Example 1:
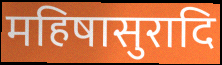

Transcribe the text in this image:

महिषासुरादि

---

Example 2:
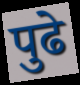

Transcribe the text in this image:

पुढे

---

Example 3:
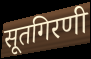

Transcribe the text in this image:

सूतगिरणी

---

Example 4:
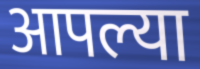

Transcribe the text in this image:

आपल्या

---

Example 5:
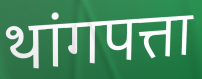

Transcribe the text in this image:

थांगपत्ता